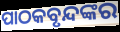
ପାଠକବୃନ୍ଦଙ୍କର